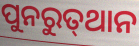
ପୁନରୁତ୍‌ଥାନ